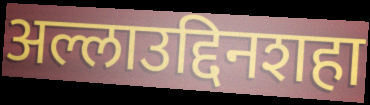
अल्लाउद्दिनशहा